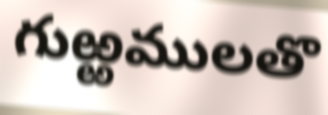
గుఱ్ఱములతొ